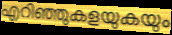
എറിഞ്ഞുകളയുകയും